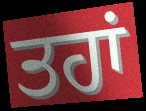
ਤਹਾਂ